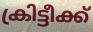
ക്രിട്ടീക്ക്